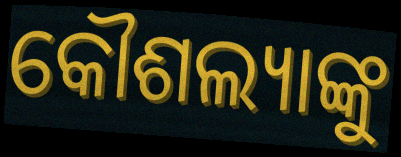
କୌଶଲ୍ୟାଙ୍କୁ